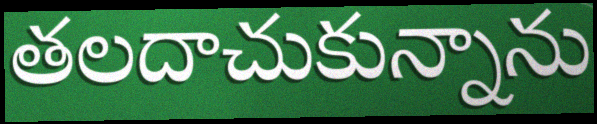
తలదాచుకున్నాను